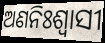
ଅଣନିଃଶ୍ଵାସୀ